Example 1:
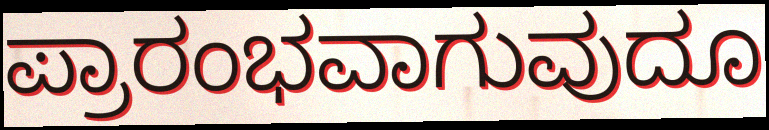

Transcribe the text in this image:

ಪ್ರಾರಂಭವಾಗುವುದೂ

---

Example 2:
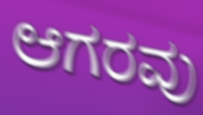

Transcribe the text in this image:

ಆಗರವು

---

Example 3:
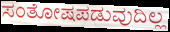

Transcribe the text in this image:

ಸಂತೋಷಪಡುವುದಿಲ್ಲ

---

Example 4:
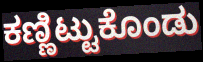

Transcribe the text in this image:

ಕಣ್ಣಿಟ್ಟುಕೊಂಡು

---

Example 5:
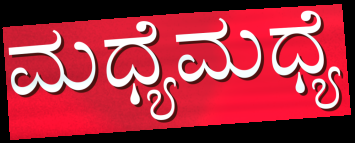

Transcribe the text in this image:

ಮಧ್ಯೆಮಧ್ಯೆ